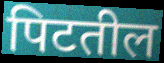
पिटतील